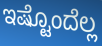
ಇಷ್ಟೊಂದೆಲ್ಲ